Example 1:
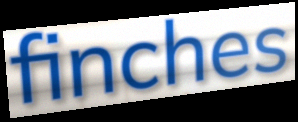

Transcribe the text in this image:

finches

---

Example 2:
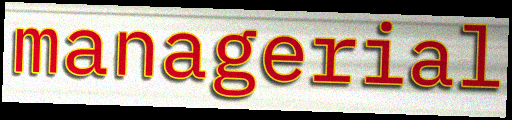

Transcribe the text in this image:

managerial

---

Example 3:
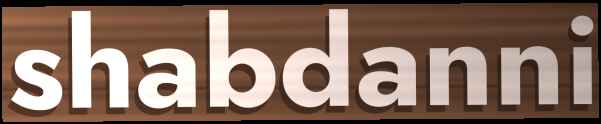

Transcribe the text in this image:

shabdanni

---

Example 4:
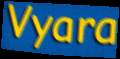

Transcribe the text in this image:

Vyara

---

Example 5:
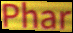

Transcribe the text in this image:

Phar